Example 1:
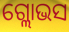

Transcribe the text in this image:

ଗ୍ଲୋଭସ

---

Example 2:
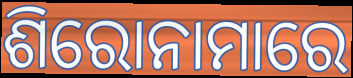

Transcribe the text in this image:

ଶିରୋନାମାରେ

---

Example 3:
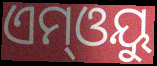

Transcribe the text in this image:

ଏମ୍ଓୟୁ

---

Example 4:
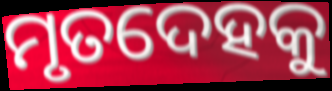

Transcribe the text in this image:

ମୃତଦେହକୁ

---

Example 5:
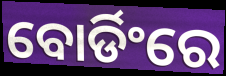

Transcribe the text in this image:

ବୋର୍ଡିଂରେ